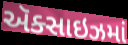
ઍક્સાઇઝમાં